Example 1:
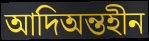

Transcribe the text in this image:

আদিঅন্তহীন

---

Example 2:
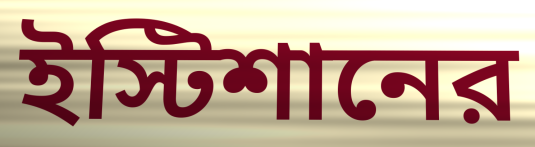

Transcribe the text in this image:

ইস্টিশানের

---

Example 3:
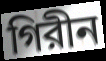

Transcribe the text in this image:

গিরীন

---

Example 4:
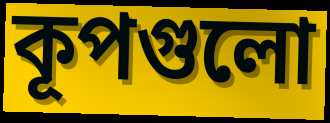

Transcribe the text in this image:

কূপগুলো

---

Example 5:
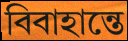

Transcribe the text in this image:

বিবাহান্তে